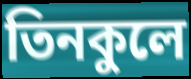
তিনকুলে